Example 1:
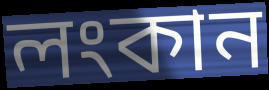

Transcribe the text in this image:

লংকান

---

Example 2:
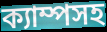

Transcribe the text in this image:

ক্যাম্পসহ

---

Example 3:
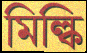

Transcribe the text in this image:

মিল্কি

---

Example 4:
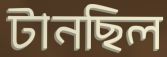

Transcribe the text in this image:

টানছিল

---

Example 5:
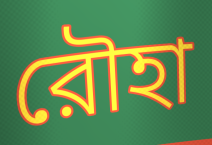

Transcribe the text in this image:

রৌহা